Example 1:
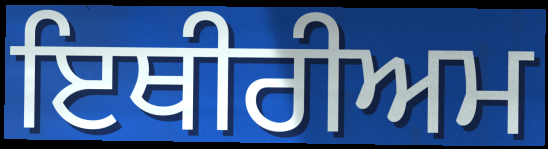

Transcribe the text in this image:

ਇਥੀਰੀਅਮ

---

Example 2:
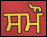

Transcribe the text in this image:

ਸਮੌ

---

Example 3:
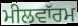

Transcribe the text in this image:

ਮੀਲਵਾੱਰਮ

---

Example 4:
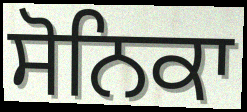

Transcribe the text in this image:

ਸੋਨਿਕਾ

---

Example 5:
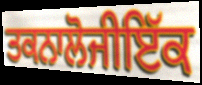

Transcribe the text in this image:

ਤਕਨਾਲੋਜੀਇੱਕ